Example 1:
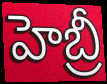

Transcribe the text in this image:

హెబ్రీ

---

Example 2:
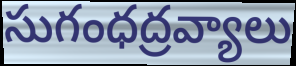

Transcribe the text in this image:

సుగంధద్రవ్యాలు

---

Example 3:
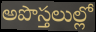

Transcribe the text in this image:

అపొస్తలుల్లో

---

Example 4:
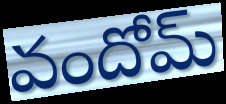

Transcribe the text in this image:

వందోమ్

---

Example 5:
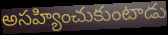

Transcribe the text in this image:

అసహ్యించుకుంటాడు